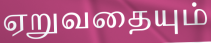
ஏறுவதையும்